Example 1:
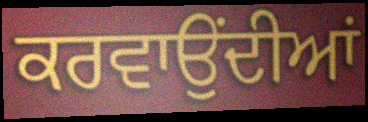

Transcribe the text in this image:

ਕਰਵਾਉੁਂਦੀਆਂ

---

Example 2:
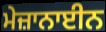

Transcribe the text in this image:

ਮੇਜ਼ਾਨਾਈਨ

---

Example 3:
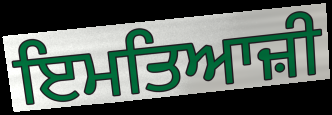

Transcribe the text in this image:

ਇਮਤਿਆਜ਼ੀ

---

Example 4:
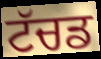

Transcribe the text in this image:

ਟੱਚਡ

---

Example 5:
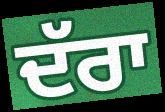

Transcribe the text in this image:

ਦੱਰਾ